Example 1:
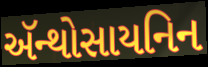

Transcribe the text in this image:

ઍન્થોસાયનિન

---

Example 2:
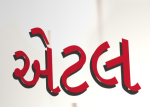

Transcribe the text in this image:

એટલ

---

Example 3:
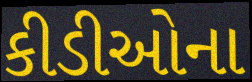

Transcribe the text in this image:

કીડીઓના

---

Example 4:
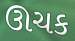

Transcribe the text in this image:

ઊચક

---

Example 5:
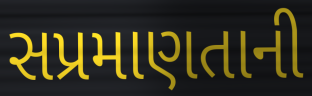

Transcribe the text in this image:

સપ્રમાણતાની